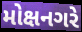
મોક્ષનગરે